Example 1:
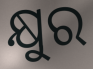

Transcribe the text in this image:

କ୍ଷୁର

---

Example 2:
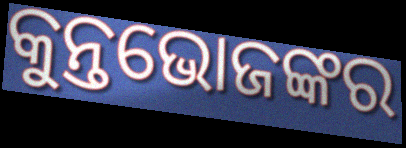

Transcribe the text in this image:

କୁନ୍ତଭୋଜଙ୍କର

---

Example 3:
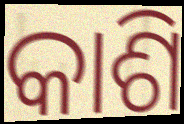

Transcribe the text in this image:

କାଶି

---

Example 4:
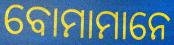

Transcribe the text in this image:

ବୋମାମାନେ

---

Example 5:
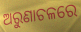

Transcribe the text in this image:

ଅରୁଣାଚଳରେ